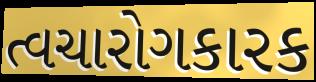
ત્વચારોગકારક